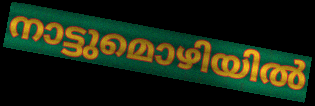
നാട്ടുമൊഴിയിൽ